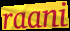
raani